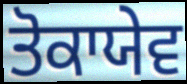
ਤੋਕਾਯੇਵ